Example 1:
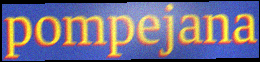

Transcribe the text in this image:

pompejana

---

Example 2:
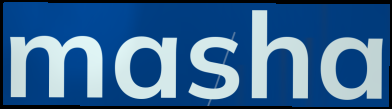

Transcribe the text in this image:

masha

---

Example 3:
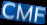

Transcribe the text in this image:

CMF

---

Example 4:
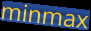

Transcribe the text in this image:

minmax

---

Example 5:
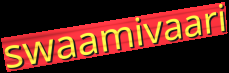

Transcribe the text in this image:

swaamivaari